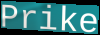
Prike